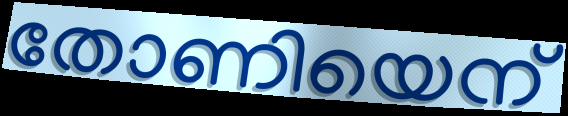
തോണിയെന്